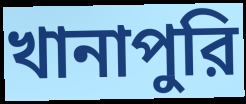
খানাপুরি